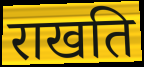
राखति